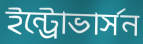
ইন্ট্রোভার্সন